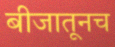
बीजातूनच